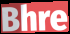
Bhre